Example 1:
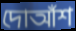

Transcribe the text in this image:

দোআঁশ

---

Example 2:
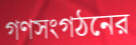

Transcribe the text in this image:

গণসংগঠনের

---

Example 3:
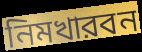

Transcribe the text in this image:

নিমখারবন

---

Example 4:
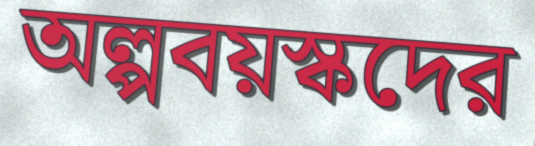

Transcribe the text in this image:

অল্পবয়স্কদের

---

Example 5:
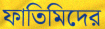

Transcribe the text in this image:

ফাতিমিদের